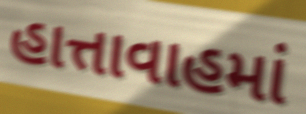
હાત્તાવાહમાં